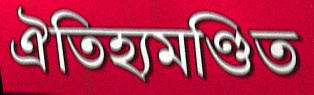
ঐতিহ্যমণ্ডিত